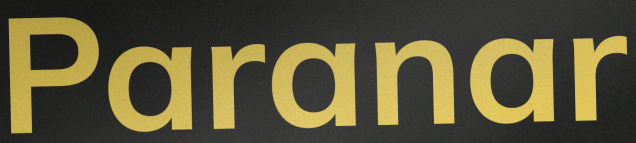
Paranar